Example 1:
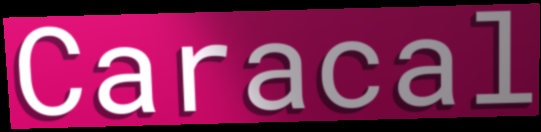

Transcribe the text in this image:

Caracal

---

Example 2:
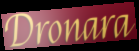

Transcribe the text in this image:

Dronara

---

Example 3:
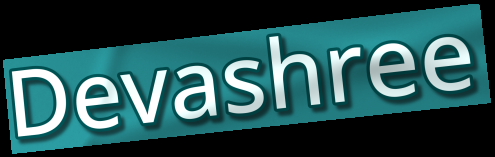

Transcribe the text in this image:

Devashree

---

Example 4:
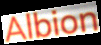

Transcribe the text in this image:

Albion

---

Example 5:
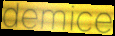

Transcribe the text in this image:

demice